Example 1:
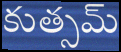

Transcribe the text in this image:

కుత్సమ్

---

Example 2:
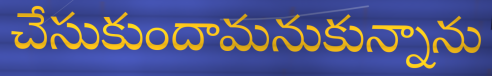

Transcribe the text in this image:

చేసుకుందామనుకున్నాను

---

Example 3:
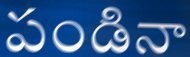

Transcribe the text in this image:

పండినా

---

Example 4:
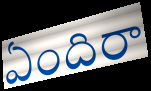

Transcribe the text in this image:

ఏందిరా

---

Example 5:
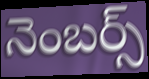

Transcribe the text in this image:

నెంబర్స్